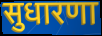
सुधारणा